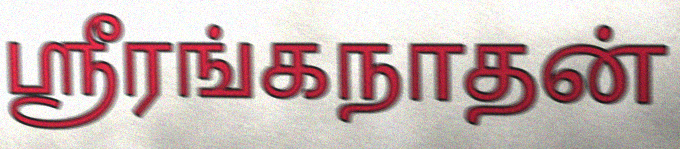
ஸ்ரீரங்கநாதன்